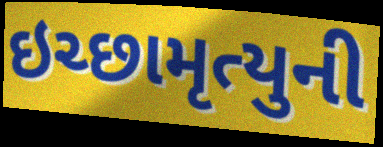
ઇચ્છામૃત્યુની